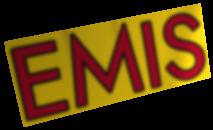
EMIS